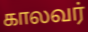
காலவர்